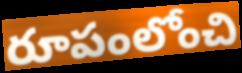
రూపంలోంచి